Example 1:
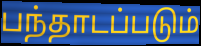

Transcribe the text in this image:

பந்தாடப்படும்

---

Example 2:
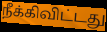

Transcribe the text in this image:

நீக்கிவிட்டது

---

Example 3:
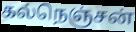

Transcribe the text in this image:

கல்நெஞ்சன்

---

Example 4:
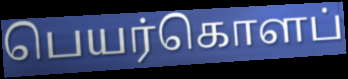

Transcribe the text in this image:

பெயர்கொளப்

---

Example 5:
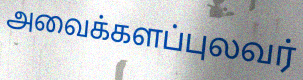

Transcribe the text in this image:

அவைக்களப்புலவர்